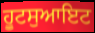
ਹੂਟਸੁਆਇਟ